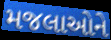
મજલાઓને